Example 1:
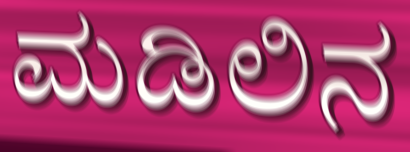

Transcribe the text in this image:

ಮಡಿಲಿನ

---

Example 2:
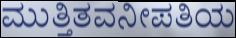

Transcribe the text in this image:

ಮುತ್ತಿತವನೀಪತಿಯ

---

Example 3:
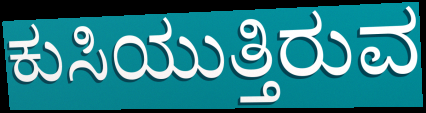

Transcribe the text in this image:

ಕುಸಿಯುತ್ತಿರುವ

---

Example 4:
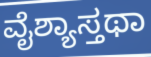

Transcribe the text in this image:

ವೈಶ್ಯಾಸ್ತಥಾ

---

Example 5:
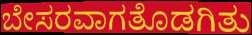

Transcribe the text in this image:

ಬೇಸರವಾಗತೊಡಗಿತು